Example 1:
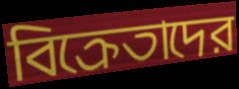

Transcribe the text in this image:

বিক্রেতাদের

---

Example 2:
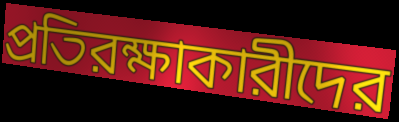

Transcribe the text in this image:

প্রতিরক্ষাকারীদের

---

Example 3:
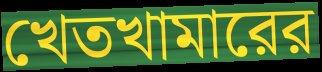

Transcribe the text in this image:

খেতখামারের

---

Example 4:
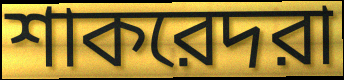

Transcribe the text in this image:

শাকরেদরা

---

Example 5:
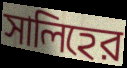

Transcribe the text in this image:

সালিহের